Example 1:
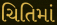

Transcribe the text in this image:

ચિતિમાં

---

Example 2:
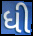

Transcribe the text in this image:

ધી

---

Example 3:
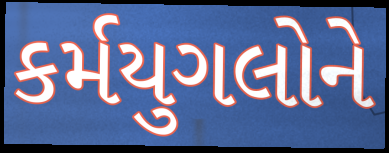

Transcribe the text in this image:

કર્મયુગલોને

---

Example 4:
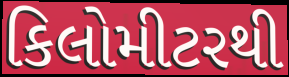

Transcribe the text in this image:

કિલોમીટરથી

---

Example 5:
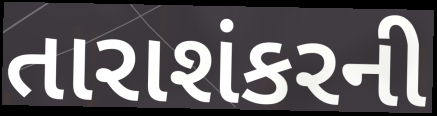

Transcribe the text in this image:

તારાશંકરની